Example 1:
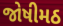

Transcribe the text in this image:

જોષીમઠ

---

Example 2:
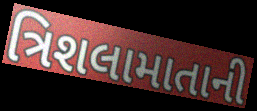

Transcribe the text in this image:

ત્રિશલામાતાની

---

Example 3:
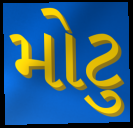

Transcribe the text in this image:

મોટુ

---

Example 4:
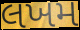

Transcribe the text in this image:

લખમ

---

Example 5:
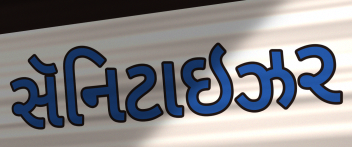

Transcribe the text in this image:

સૅનિટાઇઝર